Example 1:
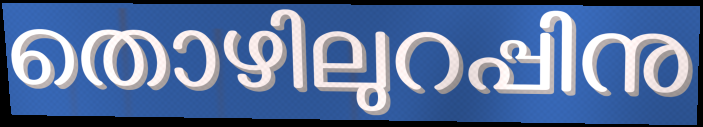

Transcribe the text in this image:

തൊഴിലുറപ്പിനു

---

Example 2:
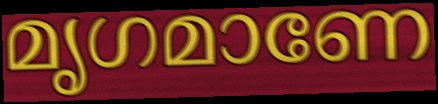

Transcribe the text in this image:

മൃഗമാണേ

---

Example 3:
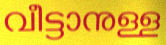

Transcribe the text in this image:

വീട്ടാനുള്ള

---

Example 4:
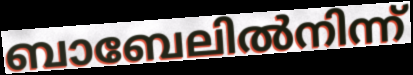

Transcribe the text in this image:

ബാബേലിൽനിന്ന്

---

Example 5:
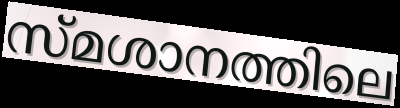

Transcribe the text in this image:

സ്മശാനത്തിലെ